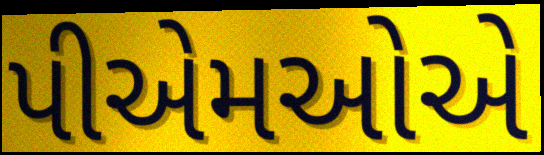
પીએમઓએ